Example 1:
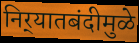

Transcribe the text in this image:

निर्यातबंदीमुळे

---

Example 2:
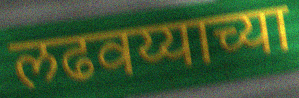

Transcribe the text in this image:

लढवय्याच्या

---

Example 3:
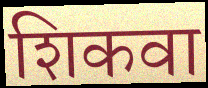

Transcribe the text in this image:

शिकवा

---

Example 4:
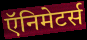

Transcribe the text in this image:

ऍनिमेटर्स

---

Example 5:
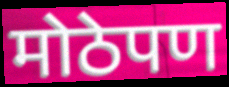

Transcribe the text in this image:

मोठेपण